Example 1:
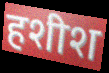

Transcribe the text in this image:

हशीश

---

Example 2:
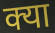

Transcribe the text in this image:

क्‍या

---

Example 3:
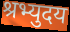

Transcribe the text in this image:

श्रभ्युदय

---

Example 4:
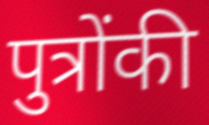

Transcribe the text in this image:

पुत्रोंकी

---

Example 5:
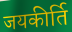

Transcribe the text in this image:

जयकीर्ति